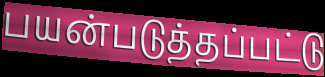
பயன்படுத்தப்பட்டு